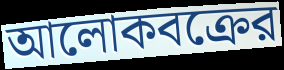
আলোকবক্রের